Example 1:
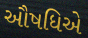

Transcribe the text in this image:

ઔષધિએ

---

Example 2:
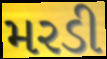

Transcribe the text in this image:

મરડી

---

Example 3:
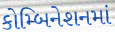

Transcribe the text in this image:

કોમ્બિનેશનમાં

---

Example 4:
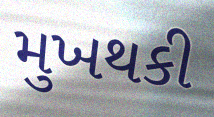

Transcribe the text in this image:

મુખથકી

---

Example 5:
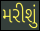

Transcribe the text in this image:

મરીશું